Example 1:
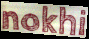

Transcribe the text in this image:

nokhi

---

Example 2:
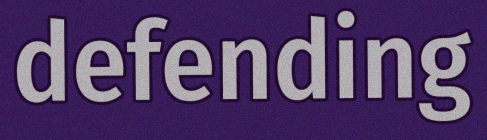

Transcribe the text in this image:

defending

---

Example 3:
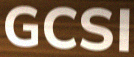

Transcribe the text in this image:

GCSI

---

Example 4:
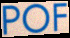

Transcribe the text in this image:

POF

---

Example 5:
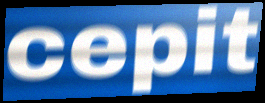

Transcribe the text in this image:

cepit